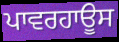
ਪਾਵਰਹਾਊਸ